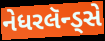
નેધરલૅન્ડ્સે